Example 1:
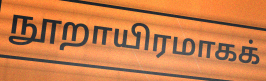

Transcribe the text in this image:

நூறாயிரமாகக்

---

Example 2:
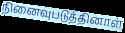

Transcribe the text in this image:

நினைவுபடுத்தினாள்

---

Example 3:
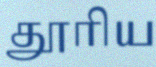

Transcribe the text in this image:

தூரிய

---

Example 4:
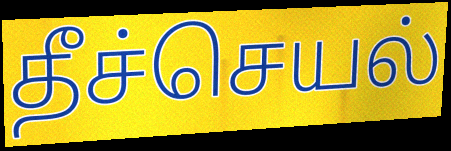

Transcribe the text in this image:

தீச்செயல்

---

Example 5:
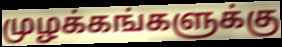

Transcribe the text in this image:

முழக்கங்களுக்கு